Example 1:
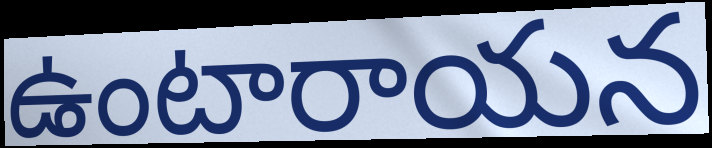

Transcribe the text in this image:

ఉంటారాయన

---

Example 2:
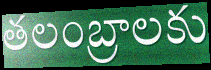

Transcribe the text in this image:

తలంబ్రాలకు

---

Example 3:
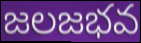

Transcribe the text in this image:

జలజభవ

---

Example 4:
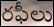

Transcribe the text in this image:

రఫీలు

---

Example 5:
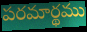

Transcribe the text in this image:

పరమార్థము